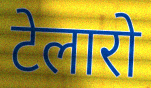
टेलारो